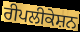
ਰੀਪਲੀਕੇਸ਼ਨ